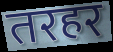
तरहर